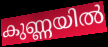
കുണ്ണയിൽ